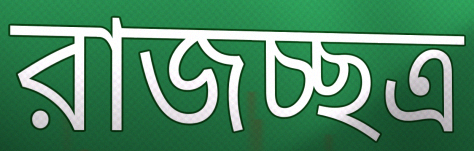
রাজচ্ছত্র